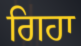
ਗਿਹਾ